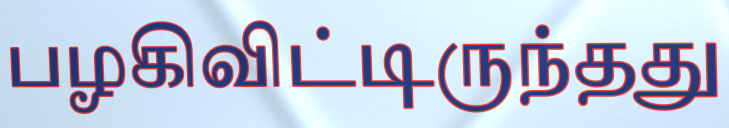
பழகிவிட்டிருந்தது